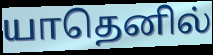
யாதெனில்